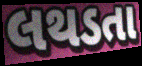
લથડતા